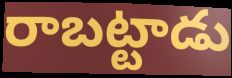
రాబట్టాడు